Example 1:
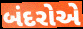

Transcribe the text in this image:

બંદરોએ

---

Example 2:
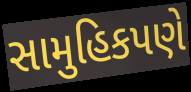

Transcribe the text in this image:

સામુહિકપણે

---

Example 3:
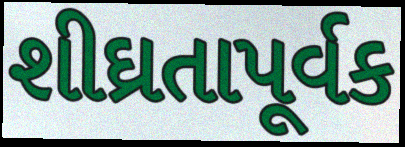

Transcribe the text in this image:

શીઘ્રતાપૂર્વક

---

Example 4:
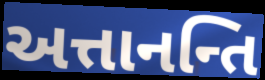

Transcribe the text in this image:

અત્તાનન્તિ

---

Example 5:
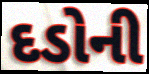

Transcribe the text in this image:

દડોની